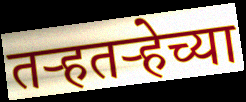
तऱ्हतऱ्हेच्या